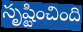
సృష్టించింది